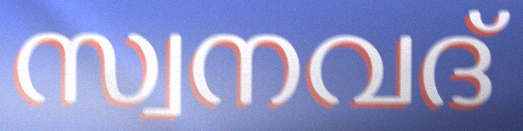
സ്വനവദ്